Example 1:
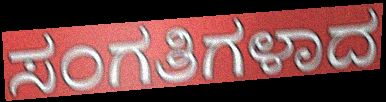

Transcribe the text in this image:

ಸಂಗತಿಗಳಾದ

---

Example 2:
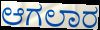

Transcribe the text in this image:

ಆಗಲಾರ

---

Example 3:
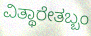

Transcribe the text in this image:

ವಿತ್ಥಾರೇತಬ್ಬಂ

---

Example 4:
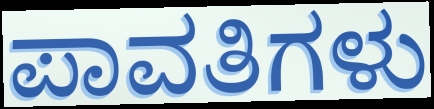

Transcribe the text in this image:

ಪಾವತಿಗಳು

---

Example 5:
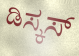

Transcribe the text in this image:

ಡಿಸ್ಕಸ್